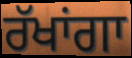
ਰੱਖਾਂਗਾ